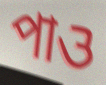
পাও